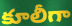
కూలీగా